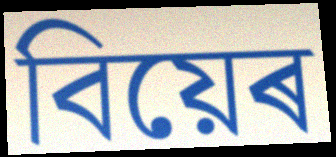
বিয়েৰ